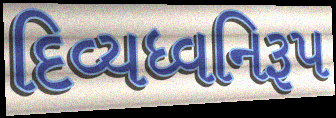
દિવ્યધ્વનિરૂપ